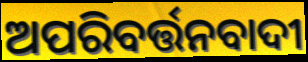
ଅପରିବର୍ତ୍ତନବାଦୀ